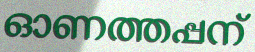
ഓണത്തപ്പന്